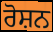
ਰੋਸ਼ਨ